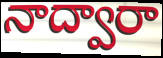
నాద్వారా